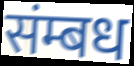
संम्बध